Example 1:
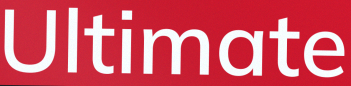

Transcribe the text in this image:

Ultimate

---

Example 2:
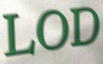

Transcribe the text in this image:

LOD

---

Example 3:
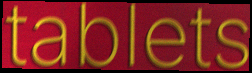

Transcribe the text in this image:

tablets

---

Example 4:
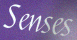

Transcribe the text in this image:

Senses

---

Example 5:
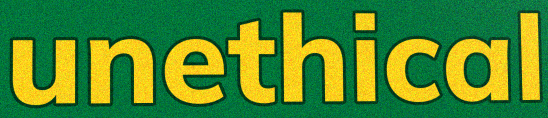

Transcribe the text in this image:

unethical